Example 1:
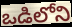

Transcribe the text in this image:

ఒడిలోని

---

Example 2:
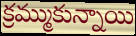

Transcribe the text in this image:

క్రమ్ముకున్నాయి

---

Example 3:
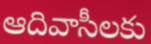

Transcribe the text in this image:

ఆదివాసీలకు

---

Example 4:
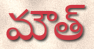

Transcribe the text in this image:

మౌత్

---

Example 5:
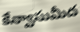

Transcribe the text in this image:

కేన్వాసుమీద